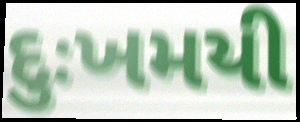
દુઃખમયી